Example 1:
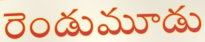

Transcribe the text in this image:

రెండుమూడు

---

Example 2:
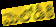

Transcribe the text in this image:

మెలోడీకి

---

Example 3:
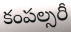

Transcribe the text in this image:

కంపల్సరీ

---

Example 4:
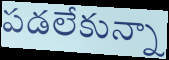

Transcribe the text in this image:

పడలేకున్నా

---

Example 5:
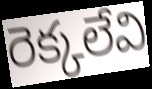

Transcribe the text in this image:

రెక్కలేవి